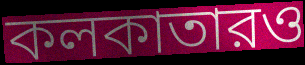
কলকাতারও